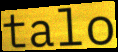
talo